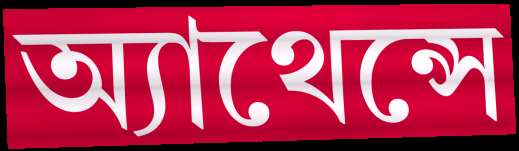
অ্যাথেন্সে